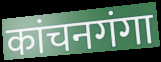
कांचनगंगा